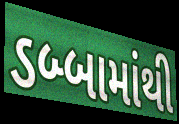
ડબ્બામાંથી